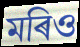
মৰিও